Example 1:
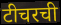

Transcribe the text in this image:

टीचरची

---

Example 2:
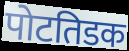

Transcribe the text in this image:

पोटतिडक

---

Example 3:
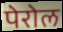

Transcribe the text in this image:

पेरोल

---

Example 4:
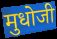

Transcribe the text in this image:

मुधोजी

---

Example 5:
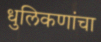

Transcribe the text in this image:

धुलिकणांचा